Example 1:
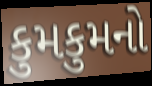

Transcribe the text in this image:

કુમકુમનો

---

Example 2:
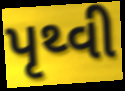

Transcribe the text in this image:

પૃથ્વી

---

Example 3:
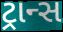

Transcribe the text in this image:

ટ્રાન્સ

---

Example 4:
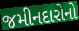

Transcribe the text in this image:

જમીનદારોનો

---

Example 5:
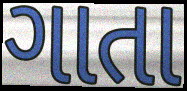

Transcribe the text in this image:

ગાતા